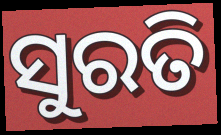
ସୁରତି